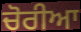
ਚੋਰੀਆ